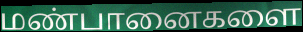
மண்பானைகளை